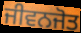
ਜੀਵਨਜੋਤ